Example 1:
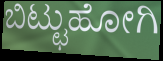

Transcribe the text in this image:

ಬಿಟ್ಟುಹೋಗಿ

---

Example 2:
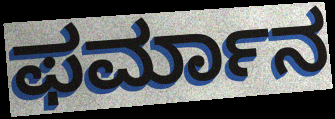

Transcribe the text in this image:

ಫರ್ಮಾನ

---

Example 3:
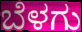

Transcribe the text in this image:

ಬೆಳಗು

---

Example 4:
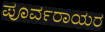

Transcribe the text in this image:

ಪೂರ್ವರಾಯರ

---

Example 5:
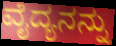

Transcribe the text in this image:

ವೈದ್ಯನನ್ನು